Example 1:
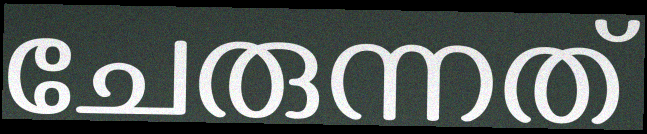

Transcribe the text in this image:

ചേരുന്നത്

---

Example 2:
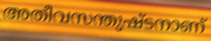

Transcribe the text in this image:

അതീവസന്തുഷ്ടനാണ്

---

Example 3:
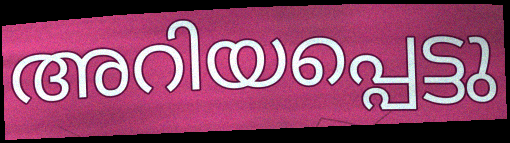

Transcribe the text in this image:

അറിയപ്പെട്ടു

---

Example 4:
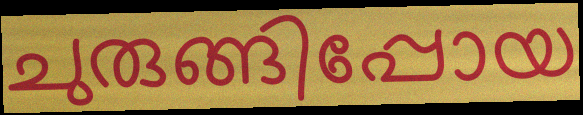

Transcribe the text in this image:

ചുരുങ്ങിപ്പോയ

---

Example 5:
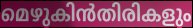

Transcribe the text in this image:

മെഴുകിൻതിരികളും